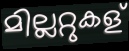
മില്ലറ്റുകള്